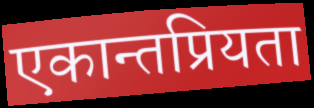
एकान्तप्रियता